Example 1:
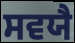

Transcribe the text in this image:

ਸਵਯੈ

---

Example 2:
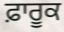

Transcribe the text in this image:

ਫ਼ਾਰੂਕ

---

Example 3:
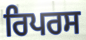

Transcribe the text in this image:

ਰਿਪਰਸ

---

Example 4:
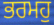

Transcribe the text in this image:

ਭਰਮਹੁ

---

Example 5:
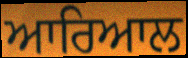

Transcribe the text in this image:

ਆਰਿਆਲ